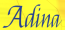
Adina